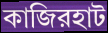
কাজিরহাট